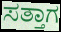
ಸತ್ತಾಗ